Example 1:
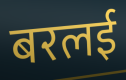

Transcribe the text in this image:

बरलई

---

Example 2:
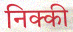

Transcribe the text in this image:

निक्‍की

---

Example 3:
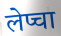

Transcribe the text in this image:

लेप्चा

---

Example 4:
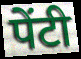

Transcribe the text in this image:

पेंटी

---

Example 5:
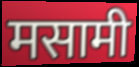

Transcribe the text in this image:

मसामी